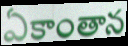
ఏకాంతాన